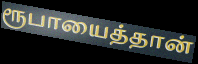
ரூபாயைத்தான்